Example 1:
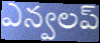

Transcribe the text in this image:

ఎన్వలప్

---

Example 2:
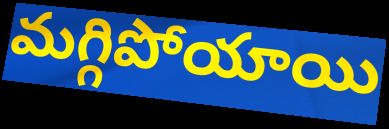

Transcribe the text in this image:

మగ్గిపోయాయి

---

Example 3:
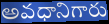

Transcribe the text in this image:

అవధానిగారు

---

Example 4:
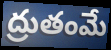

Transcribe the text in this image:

ద్రుతంమే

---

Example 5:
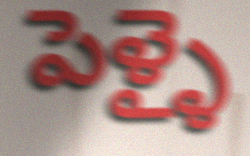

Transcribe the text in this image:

పెళ్ళై